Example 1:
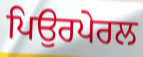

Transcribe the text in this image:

ਪਿਉਰਪੇਰਲ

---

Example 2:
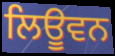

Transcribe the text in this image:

ਲਿਊਵਨ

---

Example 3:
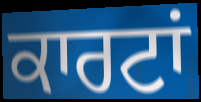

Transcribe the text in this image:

ਕਾਰਟਾਂ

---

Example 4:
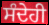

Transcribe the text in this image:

ਸੰਦੇਹੀ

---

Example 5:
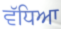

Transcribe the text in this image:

ਵੱਧਿਆ